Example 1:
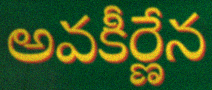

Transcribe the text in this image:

అవకీర్ణేన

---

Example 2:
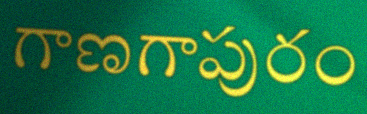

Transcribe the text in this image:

గాణగాపురం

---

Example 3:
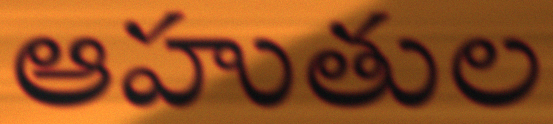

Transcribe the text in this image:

ఆహుతుల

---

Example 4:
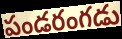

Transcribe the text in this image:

పండరంగడు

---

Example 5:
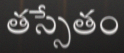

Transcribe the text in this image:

తస్సేతం